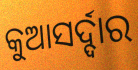
କୁଆସର୍ଦ୍ଦାର